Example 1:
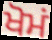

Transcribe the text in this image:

ਖੋਮਂ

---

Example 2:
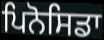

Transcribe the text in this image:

ਪਿਨੋਸਿਡਾ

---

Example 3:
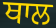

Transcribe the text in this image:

ਥਾਲ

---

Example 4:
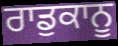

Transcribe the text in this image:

ਰਾਡੁਕਾਨੂ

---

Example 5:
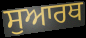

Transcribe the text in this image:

ਸੁਆਰਥ